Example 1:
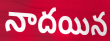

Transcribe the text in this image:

నాదయిన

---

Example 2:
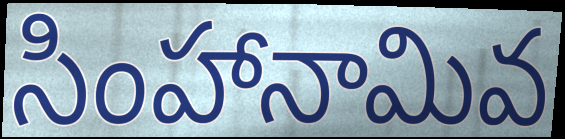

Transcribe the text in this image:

సింహానామివ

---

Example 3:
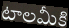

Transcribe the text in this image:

టాలమీకి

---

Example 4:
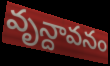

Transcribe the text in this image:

వృన్దావనం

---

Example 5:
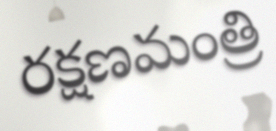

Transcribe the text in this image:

రక్షణమంత్రి